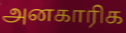
அனகாரிக